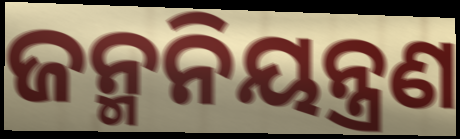
ଜନ୍ମନିୟନ୍ତ୍ରଣ